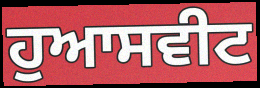
ਹੁਆਸਵੀਟ